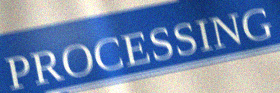
PROCESSING